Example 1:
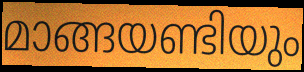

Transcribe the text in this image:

മാങ്ങയണ്ടിയും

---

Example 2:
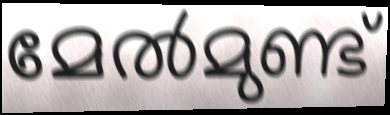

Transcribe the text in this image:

മേൽമുണ്ട്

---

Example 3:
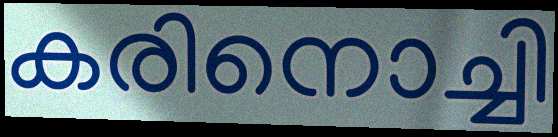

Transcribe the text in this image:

കരിനൊച്ചി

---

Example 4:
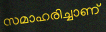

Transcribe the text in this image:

സമാഹരിച്ചാണ്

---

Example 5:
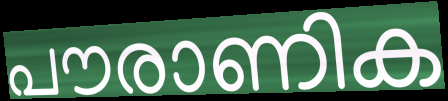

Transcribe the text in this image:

പൗരാണിക